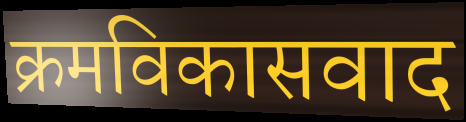
क्रमविकासवाद